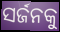
ସର୍ଜନକୁ